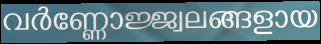
വർണ്ണോജ്ജ്വലങ്ങളായ